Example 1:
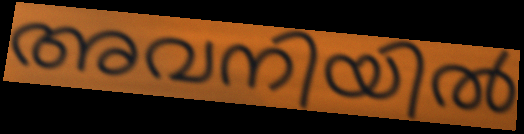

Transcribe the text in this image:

അവനിയിൽ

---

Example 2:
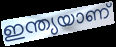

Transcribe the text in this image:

ഇന്ത്യയാണ്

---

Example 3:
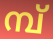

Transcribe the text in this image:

മ്പ്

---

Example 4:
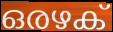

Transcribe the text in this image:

ഒരഴക്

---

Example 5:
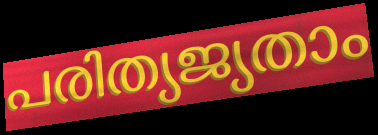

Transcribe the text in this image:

പരിത്യജ്യതാം